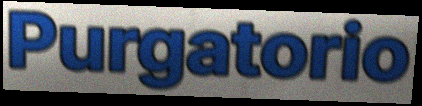
Purgatorio